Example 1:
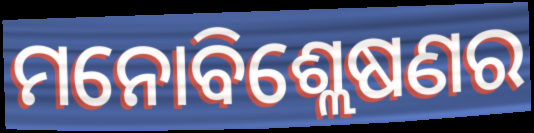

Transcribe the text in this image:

ମନୋବିଶ୍ଲେଷଣର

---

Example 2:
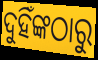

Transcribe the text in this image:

ଦୁହିଁଙ୍କଠାରୁ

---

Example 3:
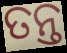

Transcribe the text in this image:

ତନ୍ତ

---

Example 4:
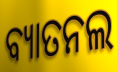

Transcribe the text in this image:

ବ୍ୟାତନଲ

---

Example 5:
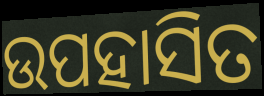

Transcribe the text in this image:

ଉପହାସିତ